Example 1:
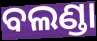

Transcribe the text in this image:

ବଲଣ୍ଡା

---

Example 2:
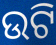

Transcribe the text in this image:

ଉଟି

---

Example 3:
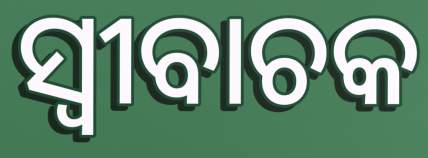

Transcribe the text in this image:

ସ୍ବୀବାଚକ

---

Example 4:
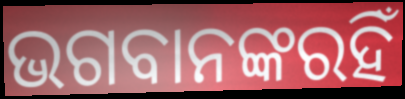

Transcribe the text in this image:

ଭଗବାନଙ୍କରହିଁ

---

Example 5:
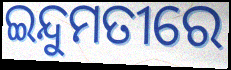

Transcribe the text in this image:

ଇନ୍ଦୁମତୀରେ